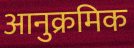
आनुक्रमिक